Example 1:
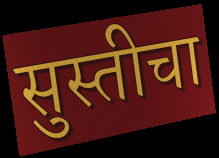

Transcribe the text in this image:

सुस्तीचा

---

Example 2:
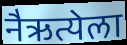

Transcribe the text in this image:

नैऋत्येला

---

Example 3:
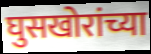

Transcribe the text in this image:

घुसखोरांच्या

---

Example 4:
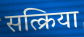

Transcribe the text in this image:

सत्क्रिया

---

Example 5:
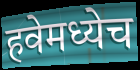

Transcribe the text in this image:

हवेमध्येच